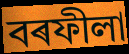
বৰফীলা